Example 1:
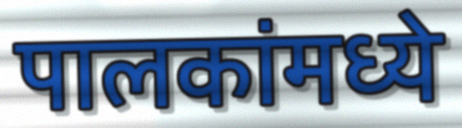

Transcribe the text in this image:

पालकांमध्ये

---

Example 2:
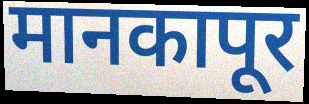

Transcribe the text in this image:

मानकापूर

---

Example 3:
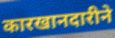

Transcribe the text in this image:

कारखानदारीने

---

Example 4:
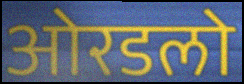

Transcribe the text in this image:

ओरडलो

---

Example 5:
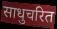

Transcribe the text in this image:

साधुचरित